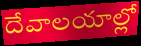
దేవాలయాల్లో